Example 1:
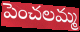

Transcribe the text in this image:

పెంచలమ్మ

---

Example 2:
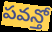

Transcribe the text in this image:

పవన్తో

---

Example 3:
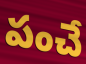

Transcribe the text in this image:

పంచే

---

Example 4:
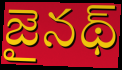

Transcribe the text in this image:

జైనథ్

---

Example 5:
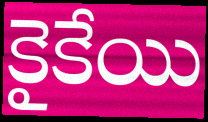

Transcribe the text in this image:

కైకేయి